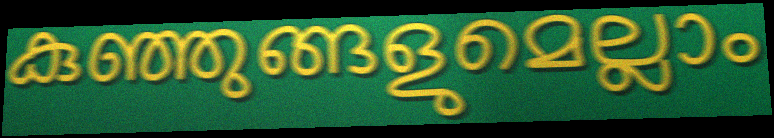
കുഞ്ഞുങ്ങളുമെല്ലാം